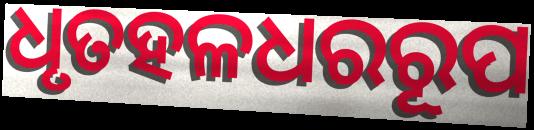
ଧୃତହଳଧରରୂପ